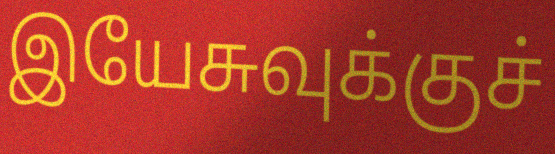
இயேசுவுக்குச்